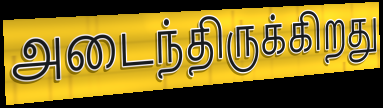
அடைந்திருக்கிறது